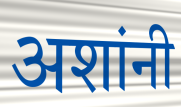
अशांनी